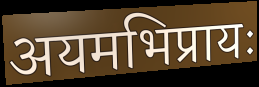
अयमभिप्रायः